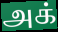
அக்